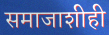
समाजाशीही